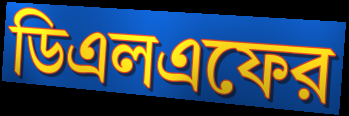
ডিএলএফের